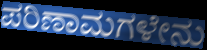
ಪರಿಣಾಮಗಳೇನು